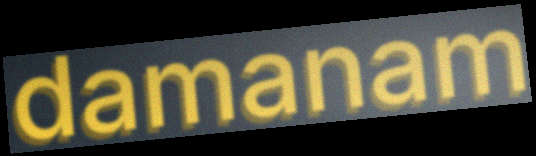
damanam